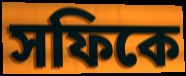
সফিকে